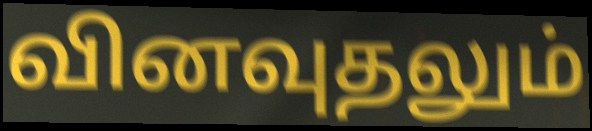
வினவுதலும்